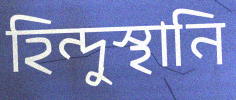
হিন্দুস্থানি